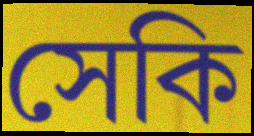
সেকি